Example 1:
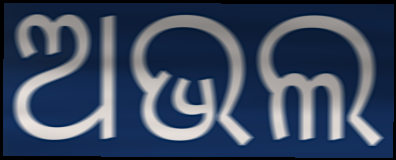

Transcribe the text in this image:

ଅଭଲ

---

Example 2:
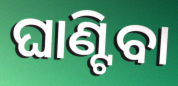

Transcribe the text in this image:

ଘାଣ୍ଟିବା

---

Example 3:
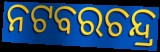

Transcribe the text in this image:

ନଟବରଚନ୍ଦ୍ର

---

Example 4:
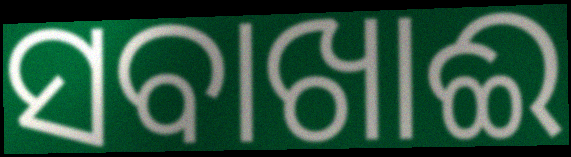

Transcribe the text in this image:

ସବାଖାଈ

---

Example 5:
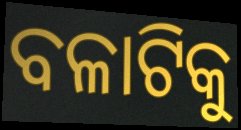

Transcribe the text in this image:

ବଳାଟିକୁ